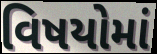
વિષયોમાં